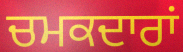
ਚਮਕਦਾਰਾਂ